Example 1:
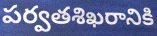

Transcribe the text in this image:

పర్వతశిఖరానికి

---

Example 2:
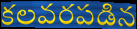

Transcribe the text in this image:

కలవరపడిన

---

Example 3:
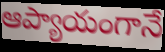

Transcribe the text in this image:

ఆప్యాయంగానే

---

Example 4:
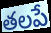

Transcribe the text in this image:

తలపే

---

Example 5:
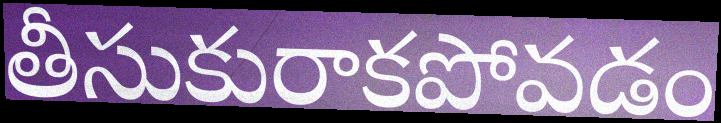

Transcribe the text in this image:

తీసుకురాకపోవడం